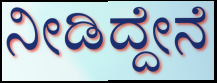
ನೀಡಿದ್ದೇನೆ